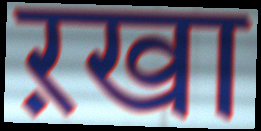
ऱखा